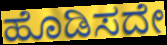
ಹೊಡಿಸದೇ